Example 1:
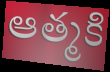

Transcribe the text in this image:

ఆత్మకి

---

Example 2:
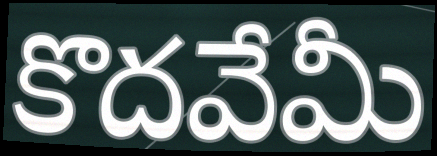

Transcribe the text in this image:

కొదవేమీ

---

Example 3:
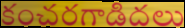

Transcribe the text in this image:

కంచరగాడిదలు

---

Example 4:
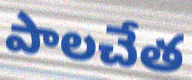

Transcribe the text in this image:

పాలచేత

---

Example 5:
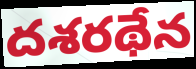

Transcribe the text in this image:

దశరథేన